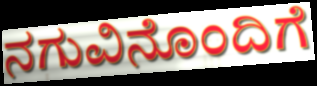
ನಗುವಿನೊಂದಿಗೆ